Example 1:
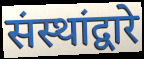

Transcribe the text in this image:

संस्थांद्वारे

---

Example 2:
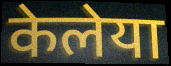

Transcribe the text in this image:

केलेया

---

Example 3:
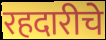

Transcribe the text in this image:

रहदारीचे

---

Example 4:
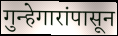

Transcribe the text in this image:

गुन्हेगारांपासून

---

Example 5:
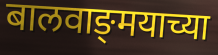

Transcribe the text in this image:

बालवाङ्‌मयाच्या